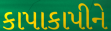
કાપાકાપીને